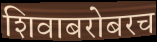
शिवाबरोबरच